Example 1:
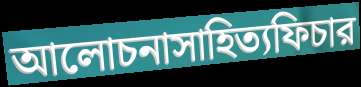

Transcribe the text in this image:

আলোচনাসাহিত্যফিচার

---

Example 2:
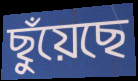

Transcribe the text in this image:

ছুঁয়েছে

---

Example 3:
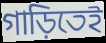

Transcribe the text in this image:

গাড়িতেই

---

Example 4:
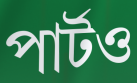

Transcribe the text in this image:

পার্টও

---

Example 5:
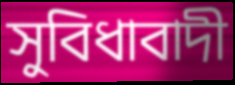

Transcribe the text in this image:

সুবিধাবাদী